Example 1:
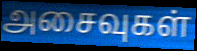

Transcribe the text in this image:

அசைவுகள்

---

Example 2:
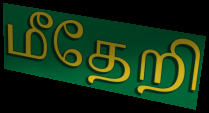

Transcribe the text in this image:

மீதேறி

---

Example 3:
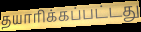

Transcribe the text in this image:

தயாரிக்கப்பட்டது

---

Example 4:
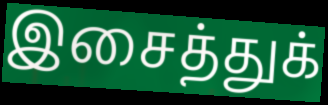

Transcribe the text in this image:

இசைத்துக்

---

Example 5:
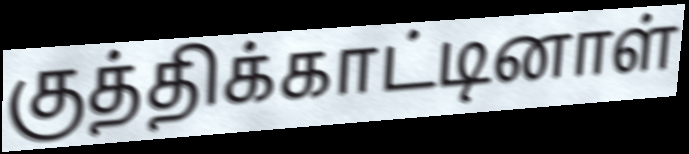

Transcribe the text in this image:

குத்திக்காட்டினாள்